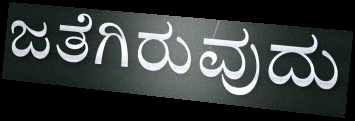
ಜತೆಗಿರುವುದು